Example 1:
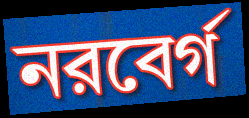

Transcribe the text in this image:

নরবের্গ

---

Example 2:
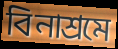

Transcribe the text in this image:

বিনাশ্রমে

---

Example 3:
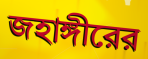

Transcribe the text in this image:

জহাঙ্গীরের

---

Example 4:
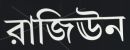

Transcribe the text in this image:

রাজিঊন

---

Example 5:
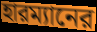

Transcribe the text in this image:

হারম্যানের